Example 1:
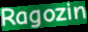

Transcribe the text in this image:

Ragozin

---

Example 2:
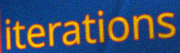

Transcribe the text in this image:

iterations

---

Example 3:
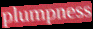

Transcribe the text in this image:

plumpness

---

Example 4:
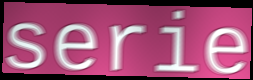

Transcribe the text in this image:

serie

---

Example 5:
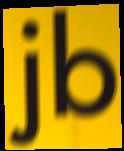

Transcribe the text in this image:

jb